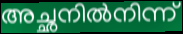
അച്ഛനിൽനിന്ന്